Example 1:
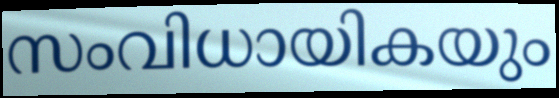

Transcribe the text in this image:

സംവിധായികയും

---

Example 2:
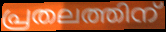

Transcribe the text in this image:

പ്രതലത്തിന്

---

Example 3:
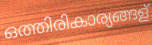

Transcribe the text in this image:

ഒത്തിരികാര്യങ്ങള്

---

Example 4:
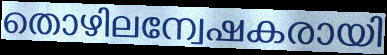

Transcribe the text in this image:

തൊഴിലന്വേഷകരായി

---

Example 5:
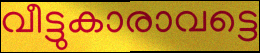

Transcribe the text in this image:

വീട്ടുകാരാവട്ടെ